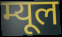
म्यूल